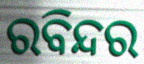
ରବିନ୍ଦର